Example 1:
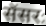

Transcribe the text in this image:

सेंसरः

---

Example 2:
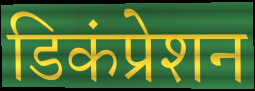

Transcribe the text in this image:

डिकंप्रेशन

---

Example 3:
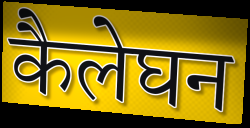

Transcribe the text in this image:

कैलेघन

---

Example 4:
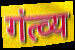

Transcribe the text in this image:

गंत्व्य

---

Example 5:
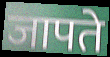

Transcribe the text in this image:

जापते